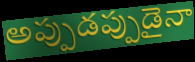
అప్పుడప్పుడైనా